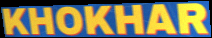
KHOKHAR